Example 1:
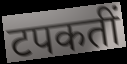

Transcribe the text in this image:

टपकतीं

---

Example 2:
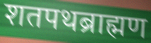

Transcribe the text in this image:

शतपथब्राह्मण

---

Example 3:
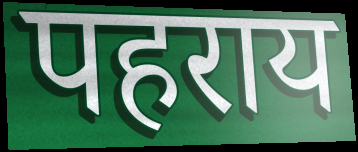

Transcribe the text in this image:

पहराय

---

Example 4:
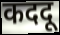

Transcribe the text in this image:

कददू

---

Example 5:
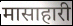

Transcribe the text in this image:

मासाहारी